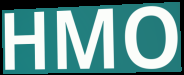
HMO